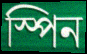
স্পিন